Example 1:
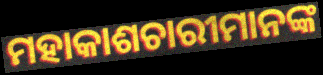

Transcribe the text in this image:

ମହାକାଶଚାରୀମାନଙ୍କ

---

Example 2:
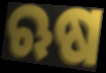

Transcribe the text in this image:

ଋଷ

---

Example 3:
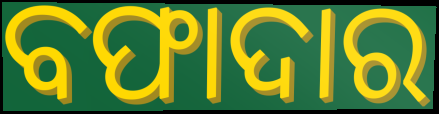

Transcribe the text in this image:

ବଫାଦାର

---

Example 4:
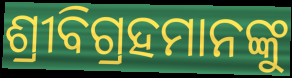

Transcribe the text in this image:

ଶ୍ରୀବିଗ୍ରହମାନଙ୍କୁ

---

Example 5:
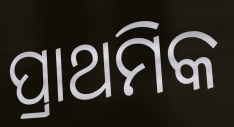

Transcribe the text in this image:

ପ୍ରାଥମିକ